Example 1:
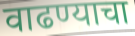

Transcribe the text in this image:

वाढण्याचा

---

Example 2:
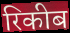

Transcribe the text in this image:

रिकीब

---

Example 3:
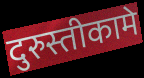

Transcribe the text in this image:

दुरुस्तीकामे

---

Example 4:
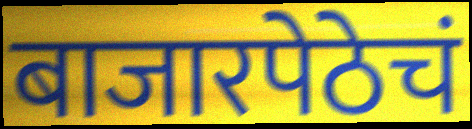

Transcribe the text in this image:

बाजारपेठेचं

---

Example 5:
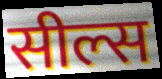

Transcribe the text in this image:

सील्स